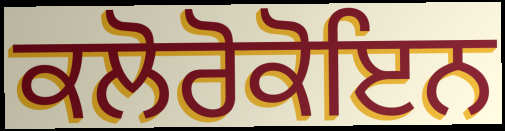
ਕਲੋਰੋਕੋਇਨ